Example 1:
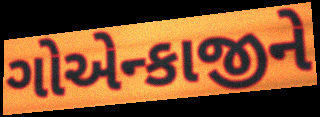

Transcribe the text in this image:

ગોએન્કાજીને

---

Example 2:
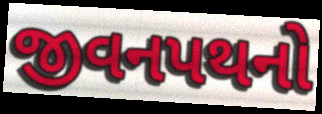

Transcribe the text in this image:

જીવનપથનો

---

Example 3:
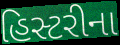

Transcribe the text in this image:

હિસ્ટરીના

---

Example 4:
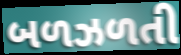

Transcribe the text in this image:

બળઝળતી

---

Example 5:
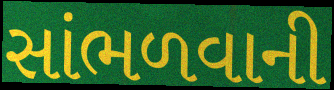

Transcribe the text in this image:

સાંભળવાની